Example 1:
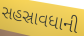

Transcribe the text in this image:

સહસ્રાવધાની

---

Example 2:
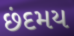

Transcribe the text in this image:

છંદમય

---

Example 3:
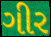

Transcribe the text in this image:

ગીર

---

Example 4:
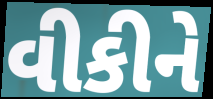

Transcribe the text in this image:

વીકીને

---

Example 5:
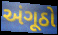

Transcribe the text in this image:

અંગૂઠો